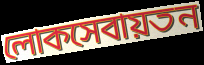
লোকসেবায়তন